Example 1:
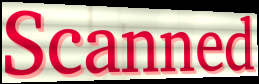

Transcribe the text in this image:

Scanned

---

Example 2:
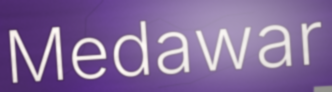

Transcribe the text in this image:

Medawar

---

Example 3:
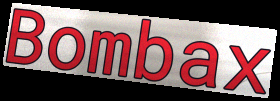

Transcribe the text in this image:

Bombax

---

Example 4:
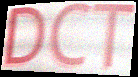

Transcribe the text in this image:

DCT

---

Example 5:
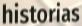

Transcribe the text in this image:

historias